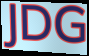
JDG